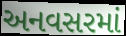
અનવસરમાં